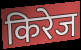
किरेज